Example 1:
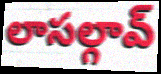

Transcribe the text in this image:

లాసల్గావ్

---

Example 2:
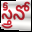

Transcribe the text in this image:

స్త్రీనో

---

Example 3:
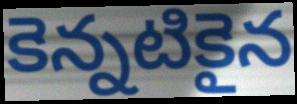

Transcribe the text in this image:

కెన్నటికైన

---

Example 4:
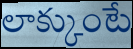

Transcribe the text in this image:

లాక్కుంటే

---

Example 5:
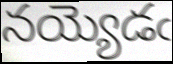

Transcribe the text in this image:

నయ్యెడఁ